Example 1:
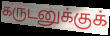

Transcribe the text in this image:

கருடனுக்குக்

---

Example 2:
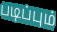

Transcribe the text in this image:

படிப்பும்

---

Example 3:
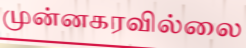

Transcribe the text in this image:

முன்னகரவில்லை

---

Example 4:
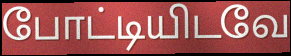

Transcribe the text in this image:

போட்டியிடவே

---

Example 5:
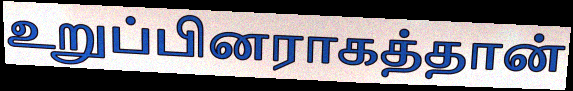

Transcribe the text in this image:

உறுப்பினராகத்தான்